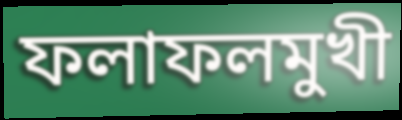
ফলাফলমুখী